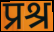
प्रश्र